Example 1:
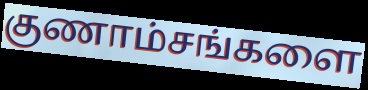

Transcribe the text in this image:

குணாம்சங்களை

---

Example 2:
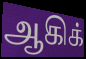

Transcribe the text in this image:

ஆகிக்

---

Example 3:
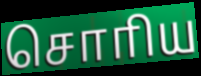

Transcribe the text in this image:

சொரிய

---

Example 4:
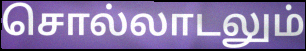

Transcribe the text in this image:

சொல்லாடலும்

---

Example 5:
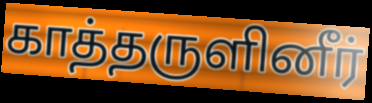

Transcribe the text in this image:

காத்தருளினீர்